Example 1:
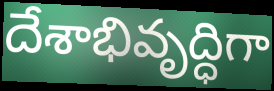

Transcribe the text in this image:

దేశాభివృద్ధిగా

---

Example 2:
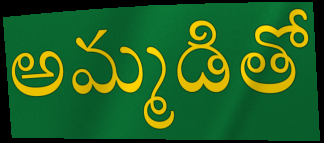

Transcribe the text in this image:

అమ్మడితో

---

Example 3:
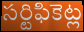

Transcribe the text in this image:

సర్టిఫికెట్ల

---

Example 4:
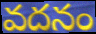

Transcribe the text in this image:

వదనం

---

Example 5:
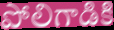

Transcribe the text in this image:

పోలిగాడికి